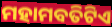
ମହାମବତିଟିଏ